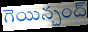
గెయిన్చంద్